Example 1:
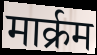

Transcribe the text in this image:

मार्क्रम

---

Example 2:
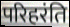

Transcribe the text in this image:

परिहरंति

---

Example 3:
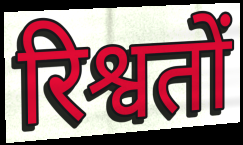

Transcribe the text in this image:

रिश्वतों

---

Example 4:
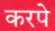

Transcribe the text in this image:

करपे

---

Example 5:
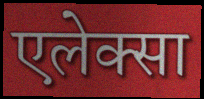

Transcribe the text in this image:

एलेक्सा